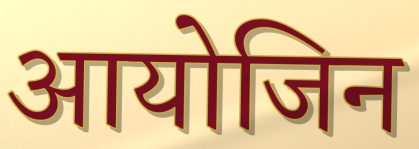
आयोजिन